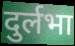
दुर्लभा